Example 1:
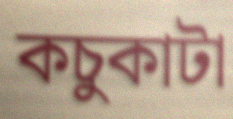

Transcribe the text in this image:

কচুকাটা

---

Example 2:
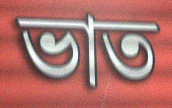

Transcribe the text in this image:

ভাত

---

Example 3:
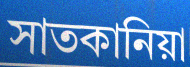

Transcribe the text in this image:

সাতকানিয়া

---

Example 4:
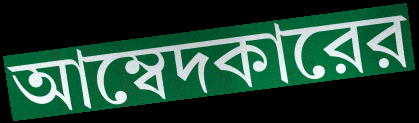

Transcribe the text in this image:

আম্বেদকারের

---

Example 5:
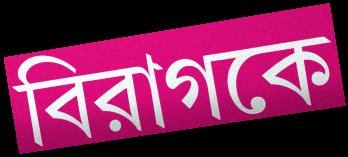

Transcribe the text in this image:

বিরাগকে